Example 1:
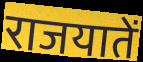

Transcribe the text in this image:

राजयातें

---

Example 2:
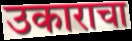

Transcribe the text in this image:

उकाराचा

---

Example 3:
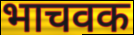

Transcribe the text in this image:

भाचवक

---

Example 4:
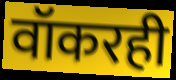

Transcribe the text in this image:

वॉकरही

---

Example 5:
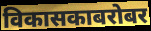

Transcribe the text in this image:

विकासकाबरोबर